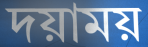
দয়াময়